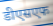
डीएसएफ